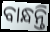
ବାନ୍ଧନ୍ତି